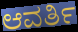
ಆವರ್ತಿ